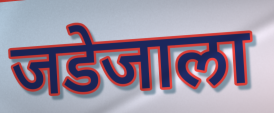
जडेजाला